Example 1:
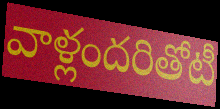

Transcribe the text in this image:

వాళ్లందరితోటీ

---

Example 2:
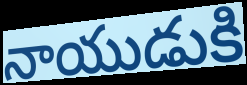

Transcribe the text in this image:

నాయుడుకి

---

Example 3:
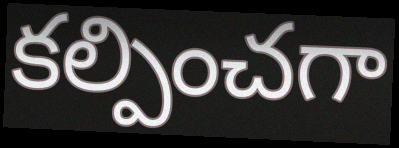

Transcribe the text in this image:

కల్పించగా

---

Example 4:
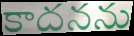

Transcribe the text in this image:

కాదనను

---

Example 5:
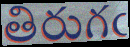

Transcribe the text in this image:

తిరుగఁ